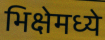
भिक्षेमध्ये